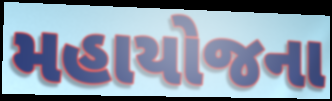
મહાયોજના